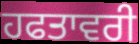
ਹਫਤਾਵਰੀ